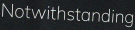
Notwithstanding